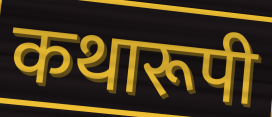
कथारूपी